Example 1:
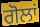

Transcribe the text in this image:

ਗੋਲਾਂ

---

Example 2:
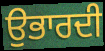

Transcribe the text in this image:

ਉਭਾਰਦੀ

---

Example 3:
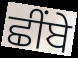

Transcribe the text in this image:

ਛੀਂਬੇ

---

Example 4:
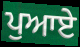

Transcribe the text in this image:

ਪੁਆਏ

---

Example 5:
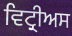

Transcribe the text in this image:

ਵਿਟ੍ਰੀਅਸ